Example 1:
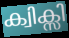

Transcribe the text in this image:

ക്വിക്സി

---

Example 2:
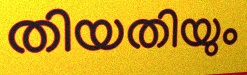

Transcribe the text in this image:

തിയതിയും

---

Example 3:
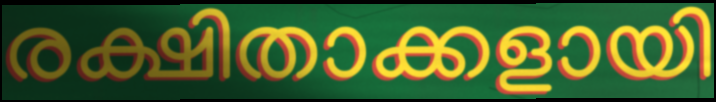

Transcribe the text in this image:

രക്ഷിതാക്കളായി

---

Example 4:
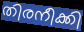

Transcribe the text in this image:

തിരനീക്കി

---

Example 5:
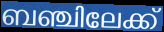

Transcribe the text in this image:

ബഞ്ചിലേക്ക്